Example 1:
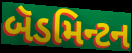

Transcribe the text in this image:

બૅડમિન્ટન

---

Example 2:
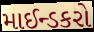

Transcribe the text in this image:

માઈન્ડકરો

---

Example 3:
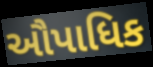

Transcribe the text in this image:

ઔપાધિક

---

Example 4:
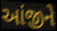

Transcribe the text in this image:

આંજીને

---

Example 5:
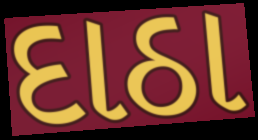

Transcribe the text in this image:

દાઠા